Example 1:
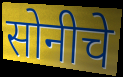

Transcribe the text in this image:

सोनीचे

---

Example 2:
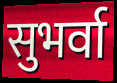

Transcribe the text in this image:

सुभर्वा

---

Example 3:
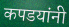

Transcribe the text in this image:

कपडयांनी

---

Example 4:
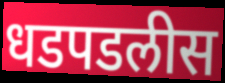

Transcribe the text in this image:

धडपडलीस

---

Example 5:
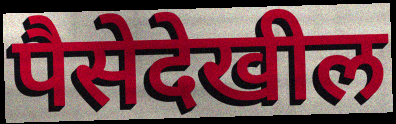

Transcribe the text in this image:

पैसेदेखील